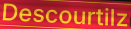
Descourtilz